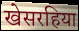
खेसरहिया